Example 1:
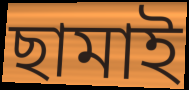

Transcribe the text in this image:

ছামাই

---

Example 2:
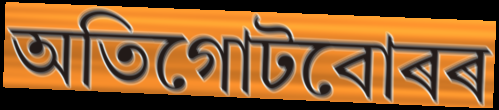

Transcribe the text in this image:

অতিগোটবোৰৰ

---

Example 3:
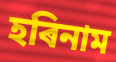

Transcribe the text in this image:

হৰিনাম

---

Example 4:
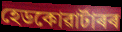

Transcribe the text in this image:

হেডকোৱাৰ্টাৰৰ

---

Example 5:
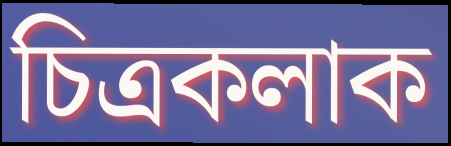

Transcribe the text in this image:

চিত্ৰকলাক